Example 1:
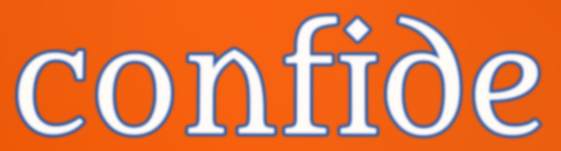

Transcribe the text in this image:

confide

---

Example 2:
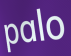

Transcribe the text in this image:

palo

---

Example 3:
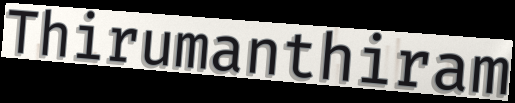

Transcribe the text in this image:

Thirumanthiram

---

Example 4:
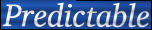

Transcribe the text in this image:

Predictable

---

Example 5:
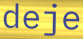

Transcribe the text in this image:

deje